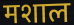
मशाल